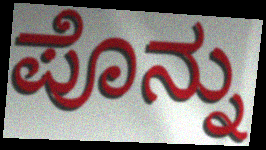
ಪೊನ್ನು